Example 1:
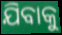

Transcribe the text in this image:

ଯିବାକୁ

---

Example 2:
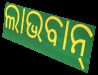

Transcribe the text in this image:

ଲାଭବାନ୍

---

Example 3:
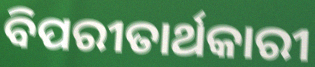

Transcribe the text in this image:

ବିପରୀତାର୍ଥକାରୀ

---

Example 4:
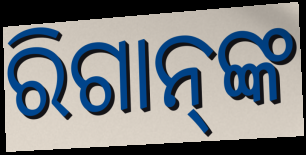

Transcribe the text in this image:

ରିଗାନ୍‌ଙ୍କ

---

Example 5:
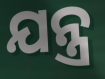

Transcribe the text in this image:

ଯନ୍ତ୍ର